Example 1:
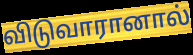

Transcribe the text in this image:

விடுவாரானால்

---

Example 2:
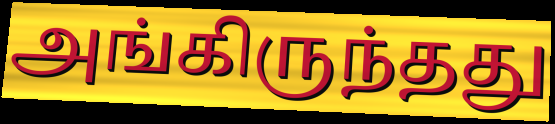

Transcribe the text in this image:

அங்கிருந்தது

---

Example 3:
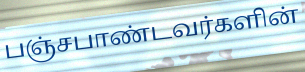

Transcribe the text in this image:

பஞ்சபாண்டவர்களின்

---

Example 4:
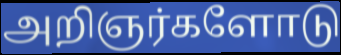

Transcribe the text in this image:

அறிஞர்களோடு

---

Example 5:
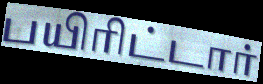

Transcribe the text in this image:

பயிரிட்டார்